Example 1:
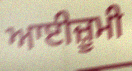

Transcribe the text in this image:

ਆਈਜ਼ੂਮੀ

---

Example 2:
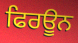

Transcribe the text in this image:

ਫਿਰਊਨ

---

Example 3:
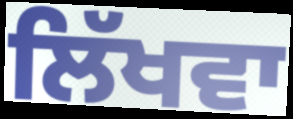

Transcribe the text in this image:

ਲਿੱਖਵਾ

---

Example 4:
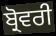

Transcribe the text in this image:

ਬ੍ਰੋਵਰੀ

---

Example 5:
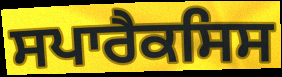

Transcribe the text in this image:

ਸਪਾਰੈਕਸਿਸ